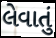
લેવાતું